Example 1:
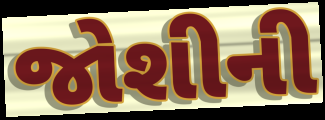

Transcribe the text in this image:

જોશીની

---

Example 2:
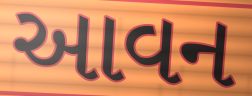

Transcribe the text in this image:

આવન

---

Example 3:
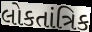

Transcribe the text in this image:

લોકતાંત્રિક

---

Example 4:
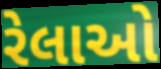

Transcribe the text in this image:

રેલાઓ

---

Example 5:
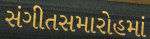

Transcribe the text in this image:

સંગીતસમારોહમાં